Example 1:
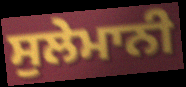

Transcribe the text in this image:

ਸੁਲੇਮਾਨੀ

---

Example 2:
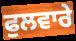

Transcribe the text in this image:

ਫੁਲਵਾਰੇ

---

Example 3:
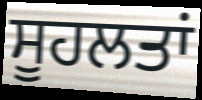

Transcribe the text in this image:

ਸੂਹਲਤਾਂ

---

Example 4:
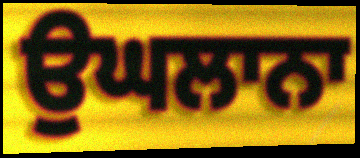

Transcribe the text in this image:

ਉਘਲਾਨਾ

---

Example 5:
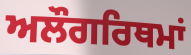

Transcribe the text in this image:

ਅਲੌਗਰਿਥਮਾਂ